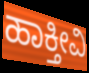
ಹಾಕ್ತೀವಿ